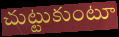
చుట్టుకుంటూ